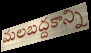
మలబద్దకాన్ని